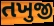
તખુજી